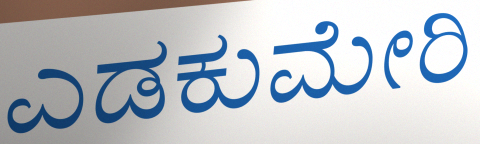
ಎಡಕುಮೇರಿ